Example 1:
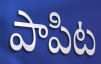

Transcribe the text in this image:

పాపిట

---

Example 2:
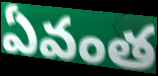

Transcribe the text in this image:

ఏవంత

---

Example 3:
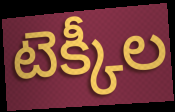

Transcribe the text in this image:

టెక్కీల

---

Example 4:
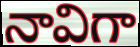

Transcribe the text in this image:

నావిగా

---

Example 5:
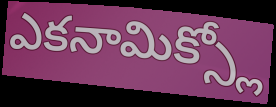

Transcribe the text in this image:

ఎకనామిక్స్లో